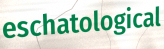
eschatological